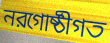
নরগোষ্ঠীগত